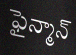
ఫైన్మాన్